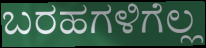
ಬರಹಗಳಿಗೆಲ್ಲ